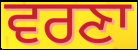
ਵਰਣਾ